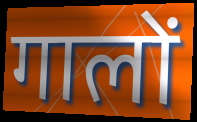
गालों